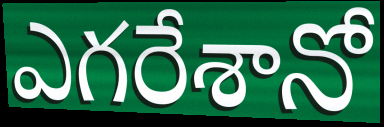
ఎగరేశానో